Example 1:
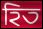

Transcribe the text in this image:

হিত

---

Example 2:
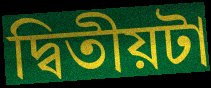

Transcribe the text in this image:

দ্বিতীয়টা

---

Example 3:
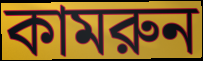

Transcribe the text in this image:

কামরুন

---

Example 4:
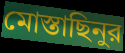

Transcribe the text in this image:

মোস্তাছিনুর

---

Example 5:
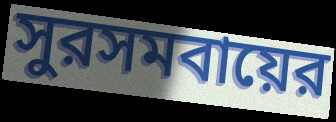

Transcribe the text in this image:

সুরসমবায়ের